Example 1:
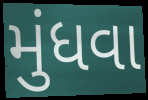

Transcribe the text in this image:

મુંધવા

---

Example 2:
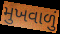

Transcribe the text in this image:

મુખવાળું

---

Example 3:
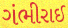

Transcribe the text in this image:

ગંભીરાઈ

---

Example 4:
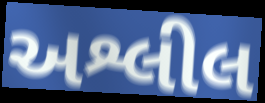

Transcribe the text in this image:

અશ્લીલ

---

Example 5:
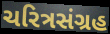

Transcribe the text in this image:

ચરિત્રસંગ્રહ